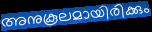
അനുകൂലമായിരിക്കും